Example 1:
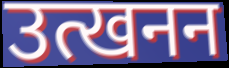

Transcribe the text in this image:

उत्खनन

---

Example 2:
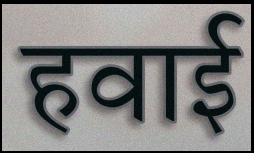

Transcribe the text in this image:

हवाई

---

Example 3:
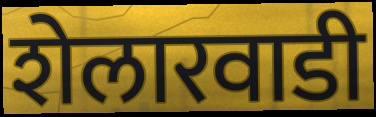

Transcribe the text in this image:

शेलारवाडी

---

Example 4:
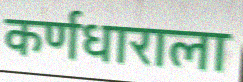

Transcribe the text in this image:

कर्णधाराला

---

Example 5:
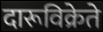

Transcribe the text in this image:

दारूविक्रेते